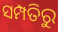
ସମ୍ପତିରୁ